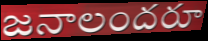
జనాలందరూ